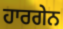
ਹਾਰਗੇਨ